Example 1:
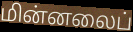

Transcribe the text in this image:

மின்னலைப்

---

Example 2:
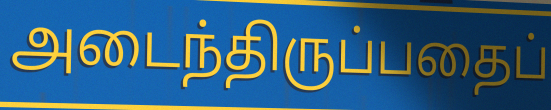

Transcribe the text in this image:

அடைந்திருப்பதைப்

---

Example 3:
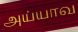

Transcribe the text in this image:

அய்யாவ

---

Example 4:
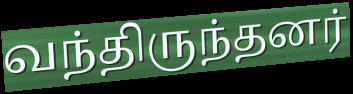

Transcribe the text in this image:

வந்திருந்தனர்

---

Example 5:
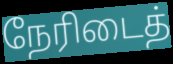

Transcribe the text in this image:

நேரிடைத்